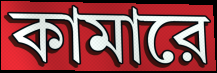
কামারে